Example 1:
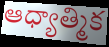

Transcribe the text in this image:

ఆధ్యాత్మిక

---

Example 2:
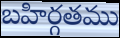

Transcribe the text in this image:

బహిర్గతము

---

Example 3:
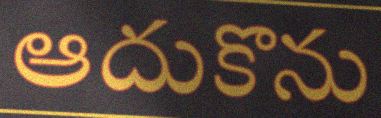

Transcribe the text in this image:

ఆదుకొను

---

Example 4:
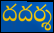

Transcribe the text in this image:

దదర్శ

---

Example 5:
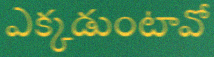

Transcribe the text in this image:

ఎక్కడుంటావో